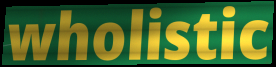
wholistic